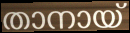
താനായ്